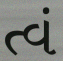
ત્વં